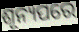
ଶୂନ୍ୟପରେ